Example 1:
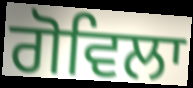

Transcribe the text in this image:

ਗੋਵਿਲਾ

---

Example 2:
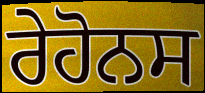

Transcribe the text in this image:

ਰੇਹੋਨਸ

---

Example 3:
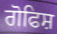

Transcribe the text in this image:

ਗੋਫਿਸ਼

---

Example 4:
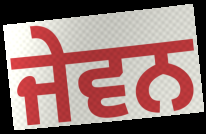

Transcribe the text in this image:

ਜੇਵਨ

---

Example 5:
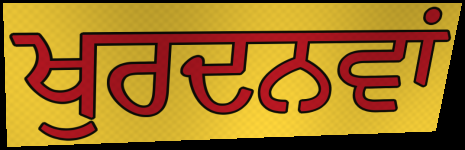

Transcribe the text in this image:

ਖੁਰਦਨਵਾਂ